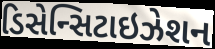
ડિસેન્સિટાઇઝેશન